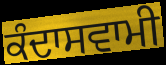
ਕੰਦਾਸਵਾਮੀ